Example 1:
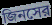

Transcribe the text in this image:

জিনসের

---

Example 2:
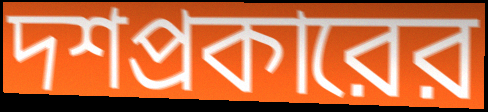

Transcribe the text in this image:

দশপ্রকারের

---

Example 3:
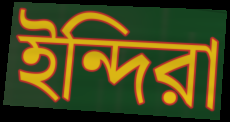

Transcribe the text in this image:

ইন্দিরা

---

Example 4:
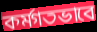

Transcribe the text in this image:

কর্মগতভাবে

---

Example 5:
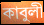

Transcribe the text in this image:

কাবুলী